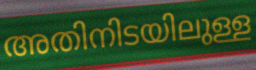
അതിനിടയിലുള്ള